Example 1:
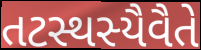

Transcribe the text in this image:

તટસ્થસ્યૈવૈતે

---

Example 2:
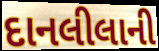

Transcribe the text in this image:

દાનલીલાની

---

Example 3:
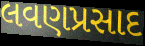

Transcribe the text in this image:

લવણપ્રસાદ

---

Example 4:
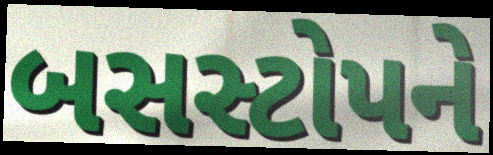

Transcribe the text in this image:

બસસ્ટોપને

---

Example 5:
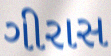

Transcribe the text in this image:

ગીરાસ